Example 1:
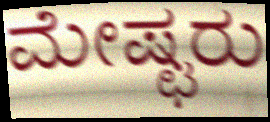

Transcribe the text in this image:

ಮೇಷ್ಟರು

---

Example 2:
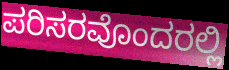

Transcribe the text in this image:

ಪರಿಸರವೊಂದರಲ್ಲಿ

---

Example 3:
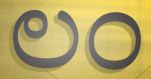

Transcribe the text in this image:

ಲಂ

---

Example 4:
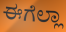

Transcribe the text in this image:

ಈಗೆಲ್ಲಾ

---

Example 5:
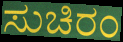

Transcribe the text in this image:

ಸುಚಿರಂ